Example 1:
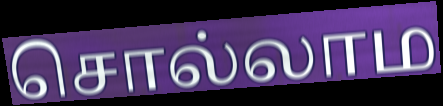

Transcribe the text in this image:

சொல்லாம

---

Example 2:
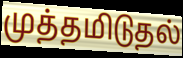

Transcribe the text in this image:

முத்தமிடுதல்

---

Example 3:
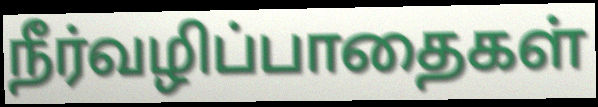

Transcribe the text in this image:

நீர்வழிப்பாதைகள்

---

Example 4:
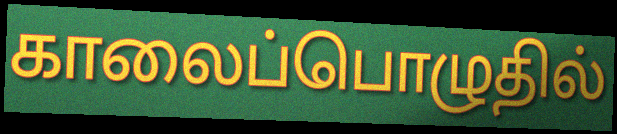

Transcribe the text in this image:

காலைப்பொழுதில்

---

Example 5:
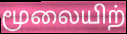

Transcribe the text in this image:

மூலையிற்